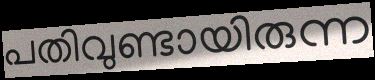
പതിവുണ്ടായിരുന്ന